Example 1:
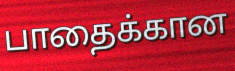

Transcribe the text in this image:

பாதைக்கான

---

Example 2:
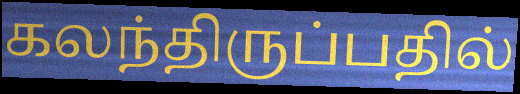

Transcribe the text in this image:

கலந்திருப்பதில்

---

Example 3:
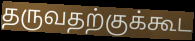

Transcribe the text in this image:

தருவதற்குக்கூட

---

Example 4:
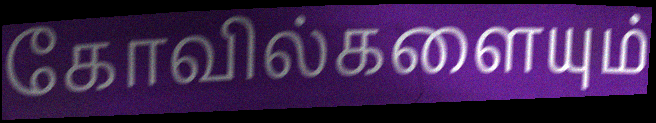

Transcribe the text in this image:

கோவில்களையும்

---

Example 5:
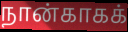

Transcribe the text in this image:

நான்காகக்